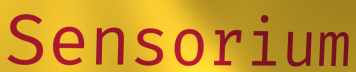
Sensorium